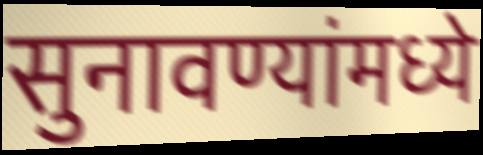
सुनावण्यांमध्ये